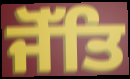
ਜੋੱਤਿ